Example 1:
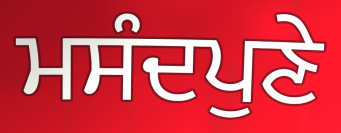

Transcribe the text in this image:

ਮਸੰਦਪੁਣੇ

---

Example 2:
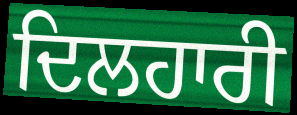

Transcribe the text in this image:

ਦਿਲਹਾਰੀ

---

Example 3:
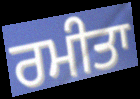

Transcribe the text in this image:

ਰਮੀਤਾ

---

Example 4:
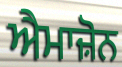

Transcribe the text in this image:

ਐਮਾਜ਼ੋਨ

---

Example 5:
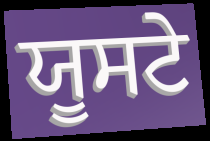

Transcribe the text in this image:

ਯੂਸਟੇ